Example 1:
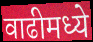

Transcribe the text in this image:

वाढीमध्ये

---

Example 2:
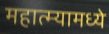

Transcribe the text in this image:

महात्म्यामध्ये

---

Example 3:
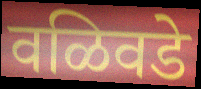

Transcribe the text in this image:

वळिवडे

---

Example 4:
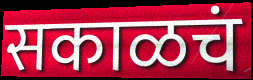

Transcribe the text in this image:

सकाळचं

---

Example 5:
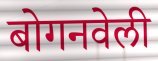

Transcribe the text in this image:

बोगनवेली